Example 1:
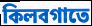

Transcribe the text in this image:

কিলবগাতে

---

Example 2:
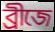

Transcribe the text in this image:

ব্রীজে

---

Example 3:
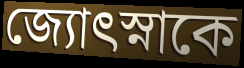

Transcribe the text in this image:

জ্যোৎস্নাকে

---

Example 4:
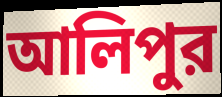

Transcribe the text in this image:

আলিপুর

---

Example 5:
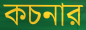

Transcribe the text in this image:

কচনার